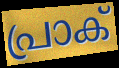
പ്രാക്